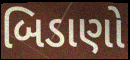
બિડાણો